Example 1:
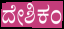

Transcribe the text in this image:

ದೇಶಿಕಂ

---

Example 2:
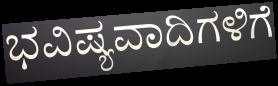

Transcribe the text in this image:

ಭವಿಷ್ಯವಾದಿಗಳಿಗೆ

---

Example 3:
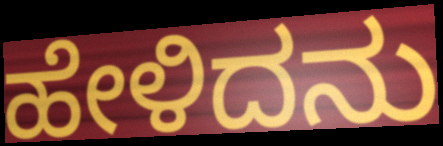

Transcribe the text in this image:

ಹೇಳಿದನು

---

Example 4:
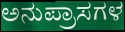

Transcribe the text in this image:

ಅನುಪ್ರಾಸಗಳ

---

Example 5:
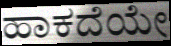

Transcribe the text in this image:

ಹಾಕದೆಯೇ